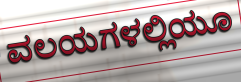
ವಲಯಗಳಲ್ಲಿಯೂ